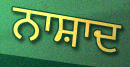
ਨਾਸ਼ਾਦ